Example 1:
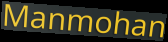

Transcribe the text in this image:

Manmohan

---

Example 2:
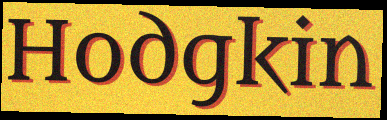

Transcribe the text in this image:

Hodgkin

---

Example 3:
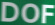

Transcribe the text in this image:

DOF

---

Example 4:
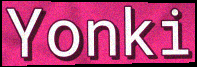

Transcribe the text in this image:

Yonki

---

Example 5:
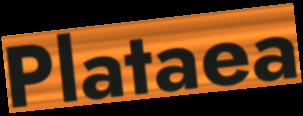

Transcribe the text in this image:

Plataea